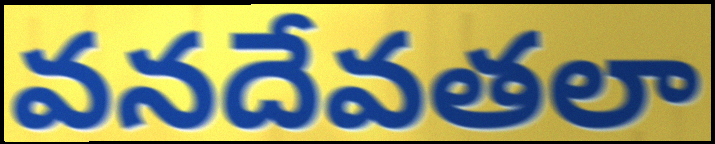
వనదేవతలా